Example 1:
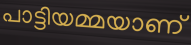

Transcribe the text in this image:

പാട്ടിയമ്മയാണ്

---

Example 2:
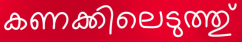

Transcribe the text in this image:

കണക്കിലെടുത്തു്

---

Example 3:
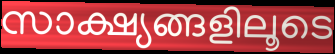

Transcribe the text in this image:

സാക്ഷ്യങ്ങളിലൂടെ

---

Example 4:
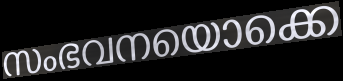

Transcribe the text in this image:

സംഭവനയൊക്കെ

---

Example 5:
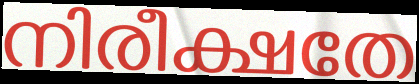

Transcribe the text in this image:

നിരീക്ഷതേ